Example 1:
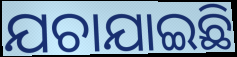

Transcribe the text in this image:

ଯଚାଯାଇଛି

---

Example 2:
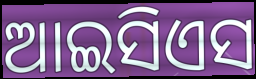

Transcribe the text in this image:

ଆଇସିଏସ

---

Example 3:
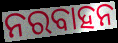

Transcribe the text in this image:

ନରବାହନ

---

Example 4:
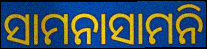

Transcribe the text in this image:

ସାମନାସାମନି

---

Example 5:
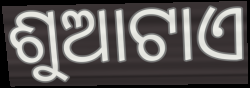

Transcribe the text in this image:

ଶୁଆଟାଏ